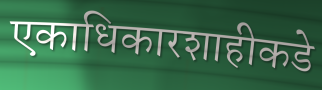
एकाधिकारशाहीकडे